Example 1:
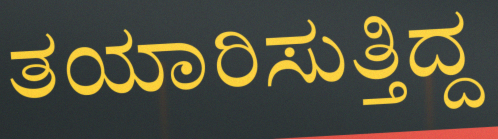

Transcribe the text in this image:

ತಯಾರಿಸುತ್ತಿದ್ದ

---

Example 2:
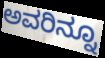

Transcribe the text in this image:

ಅವರಿನ್ನೂ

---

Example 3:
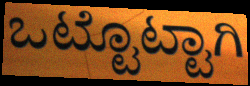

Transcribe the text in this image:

ಒಟ್ಟೊಟ್ಟಾಗಿ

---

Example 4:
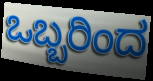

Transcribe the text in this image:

ಒಬ್ಬರಿಂದ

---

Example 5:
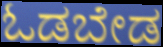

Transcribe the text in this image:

ಓಡಬೇಡ